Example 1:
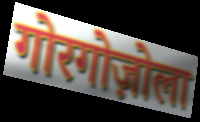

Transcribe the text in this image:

गोरगोज़ोला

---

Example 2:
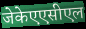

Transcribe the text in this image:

जेकेएएसीएल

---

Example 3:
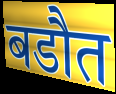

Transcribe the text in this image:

बडौत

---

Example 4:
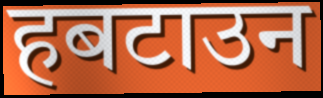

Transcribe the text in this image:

हबटाउन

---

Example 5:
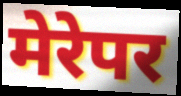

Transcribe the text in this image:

मेरेपर